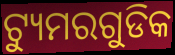
ଟ୍ୟୁମରଗୁଡିକ